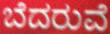
ಬೆದರುವೆ